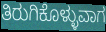
ತಿರುಗಿಕೊಳ್ಳುವಾಗ